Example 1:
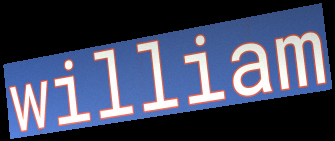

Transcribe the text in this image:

william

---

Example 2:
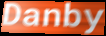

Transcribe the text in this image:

Danby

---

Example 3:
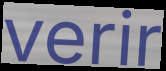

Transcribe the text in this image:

verir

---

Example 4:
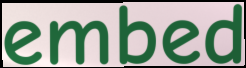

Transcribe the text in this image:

embed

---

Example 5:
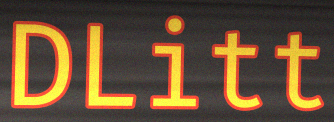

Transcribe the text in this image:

DLitt